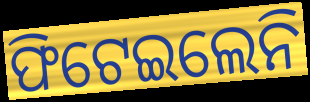
ଫିଟେଇଲେନି